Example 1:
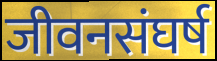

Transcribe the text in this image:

जीवनसंघर्ष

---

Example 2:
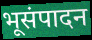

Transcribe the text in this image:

भूसंपादन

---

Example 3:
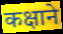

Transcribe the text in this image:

कक्षाने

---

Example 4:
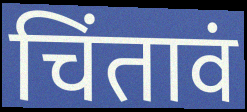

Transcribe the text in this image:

चिंतावं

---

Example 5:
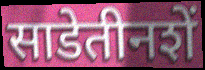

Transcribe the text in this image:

साडेतीनशें